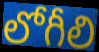
లోగీలి